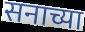
सनाच्या